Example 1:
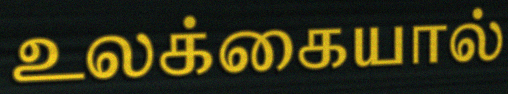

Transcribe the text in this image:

உலக்கையால்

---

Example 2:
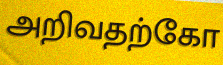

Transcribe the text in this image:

அறிவதற்கோ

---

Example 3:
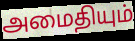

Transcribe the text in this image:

அமைதியும்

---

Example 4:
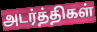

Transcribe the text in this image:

அடர்த்திகள்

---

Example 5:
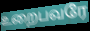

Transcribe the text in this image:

உறைபவரே